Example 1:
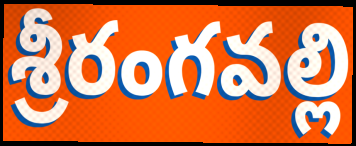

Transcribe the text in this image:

శ్రీరంగవల్లి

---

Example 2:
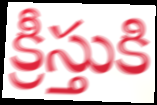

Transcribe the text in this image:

క్రీస్తుకి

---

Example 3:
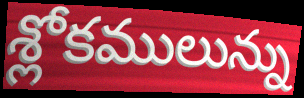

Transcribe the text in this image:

శ్లోకములున్ను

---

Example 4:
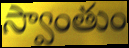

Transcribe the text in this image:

స్వాంతుం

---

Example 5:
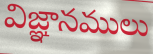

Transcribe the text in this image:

విజ్ఞానములు